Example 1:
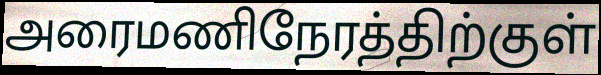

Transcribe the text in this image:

அரைமணிநேரத்திற்குள்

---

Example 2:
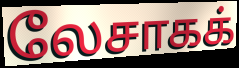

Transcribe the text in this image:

லேசாகக்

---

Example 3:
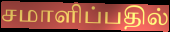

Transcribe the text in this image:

சமாளிப்பதில்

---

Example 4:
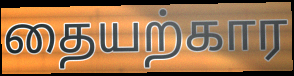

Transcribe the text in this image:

தையற்கார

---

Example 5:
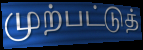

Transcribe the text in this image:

முற்பட்டுத்